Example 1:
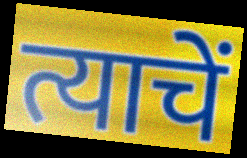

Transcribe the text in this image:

त्याचें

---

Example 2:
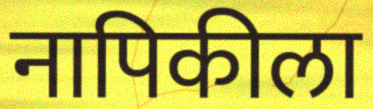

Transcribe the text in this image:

नापिकीला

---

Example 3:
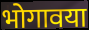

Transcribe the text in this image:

भोगावया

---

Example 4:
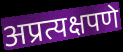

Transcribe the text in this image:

अप्रत्यक्षपणे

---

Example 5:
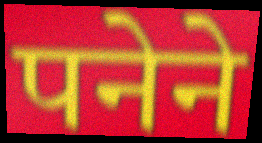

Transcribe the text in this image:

पनेने